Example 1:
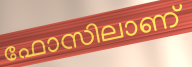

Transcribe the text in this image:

ഫോസിലാണ്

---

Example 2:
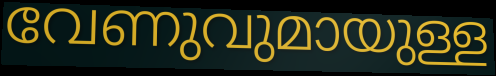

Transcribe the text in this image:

വേണുവുമായുള്ള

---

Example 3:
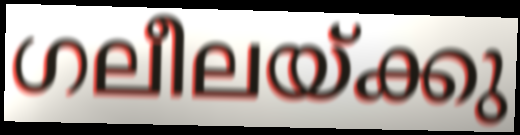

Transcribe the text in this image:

ഗലീലയ്ക്കു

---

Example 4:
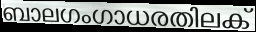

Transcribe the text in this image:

ബാലഗംഗാധരതിലക്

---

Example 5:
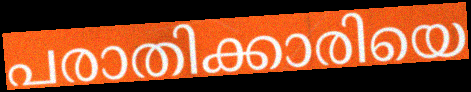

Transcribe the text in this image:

പരാതിക്കാരിയെ